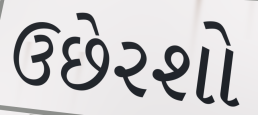
ઉછેરશો